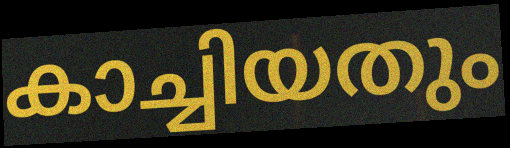
കാച്ചിയതും